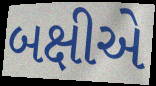
બક્ષીએ